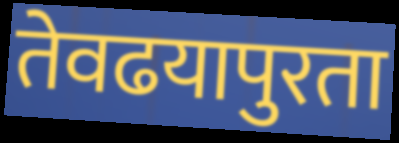
तेवढयापुरता